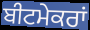
ਬੀਟਮੇਕਰਾਂ